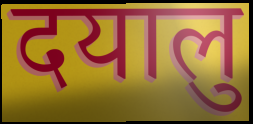
दयालु